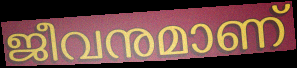
ജീവനുമാണ്